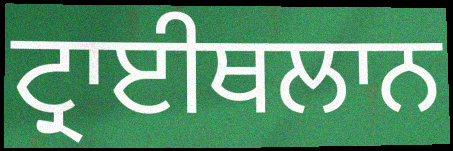
ਟ੍ਰਾਈਥਲਾਨ